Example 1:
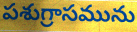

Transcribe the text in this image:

పశుగ్రాసమును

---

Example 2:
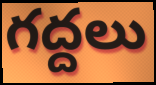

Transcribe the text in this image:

గద్దలు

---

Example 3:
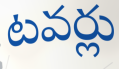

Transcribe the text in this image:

టవర్లు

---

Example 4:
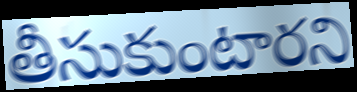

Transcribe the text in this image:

తీసుకుంటారని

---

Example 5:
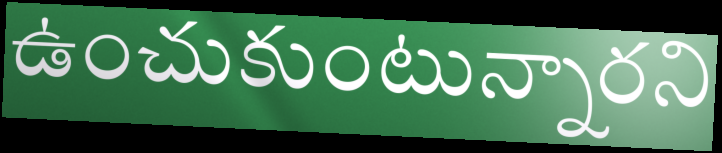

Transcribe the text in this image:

ఉంచుకుంటున్నారని